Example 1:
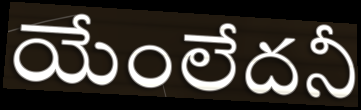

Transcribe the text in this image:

యేంలేదనీ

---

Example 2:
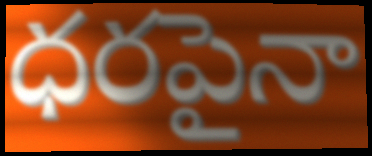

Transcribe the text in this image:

ధరపైనా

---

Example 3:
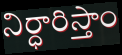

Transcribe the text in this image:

నిర్ధారిస్తాం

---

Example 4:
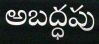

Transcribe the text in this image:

అబద్ధపు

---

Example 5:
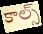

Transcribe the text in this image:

కాల్స్